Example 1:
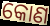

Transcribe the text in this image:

କୋଣ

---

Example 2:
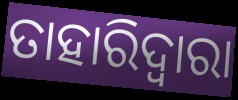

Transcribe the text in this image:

ତାହାରିଦ୍ଵାରା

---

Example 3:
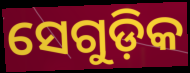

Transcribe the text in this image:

ସେଗୁଡ଼ିକ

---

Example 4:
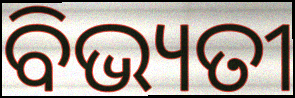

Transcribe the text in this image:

ବିଭ୍ୟତୀ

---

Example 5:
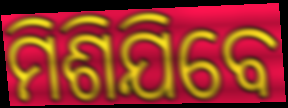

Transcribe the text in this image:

ମିଶିଯିବେ